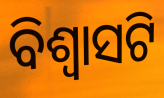
ବିଶ୍ୱାସଟି